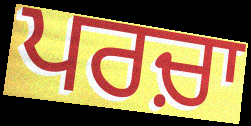
ਪਰਚ਼ਾ